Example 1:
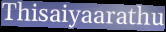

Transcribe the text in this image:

Thisaiyaarathu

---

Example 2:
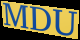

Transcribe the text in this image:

MDU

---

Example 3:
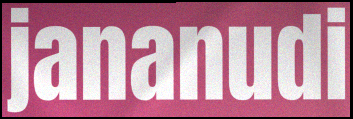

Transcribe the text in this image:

jananudi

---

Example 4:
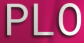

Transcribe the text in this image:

PLO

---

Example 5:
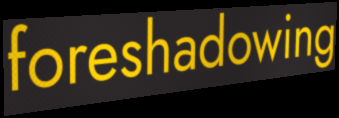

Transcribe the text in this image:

foreshadowing